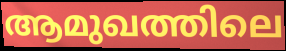
ആമുഖത്തിലെ